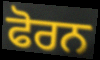
ਫੋਰਨ